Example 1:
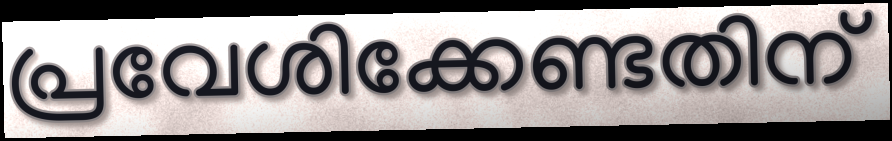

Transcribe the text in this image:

പ്രവേശിക്കേണ്ടതിന്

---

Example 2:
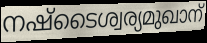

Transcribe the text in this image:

നഷ്ടൈശ്വര്യമുഖാന്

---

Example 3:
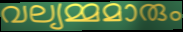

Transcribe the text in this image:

വല്യമ്മമാരും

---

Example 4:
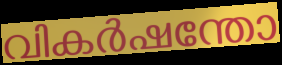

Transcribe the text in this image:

വികർഷന്തോ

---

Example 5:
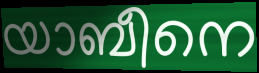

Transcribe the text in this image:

യാബീനെ